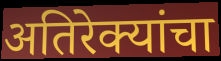
अतिरेक्यांचा